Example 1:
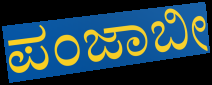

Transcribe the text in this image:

ಪಂಜಾಬೀ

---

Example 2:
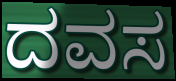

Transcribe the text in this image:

ದವಸ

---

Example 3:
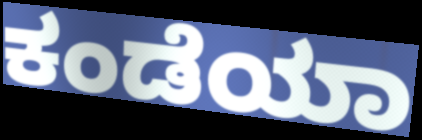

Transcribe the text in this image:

ಕಂಡೆಯಾ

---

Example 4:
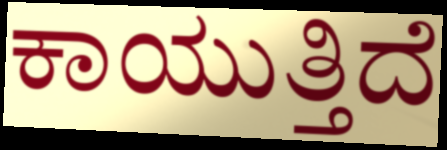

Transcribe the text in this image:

ಕಾಯುತ್ತಿದೆ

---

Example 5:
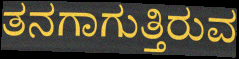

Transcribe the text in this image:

ತನಗಾಗುತ್ತಿರುವ